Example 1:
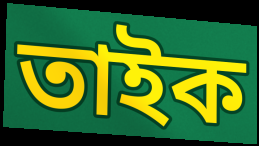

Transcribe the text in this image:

তাইক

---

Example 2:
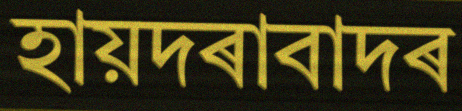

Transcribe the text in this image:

হায়দৰাবাদৰ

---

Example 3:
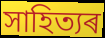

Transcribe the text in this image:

সাহিত্যৰ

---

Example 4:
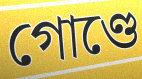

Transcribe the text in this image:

গোণ্ডে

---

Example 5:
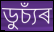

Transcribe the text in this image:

ডুচ্যঁৰ